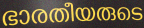
ഭാരതീയരുടെ